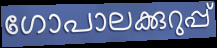
ഗോപാലക്കുറുപ്പ്